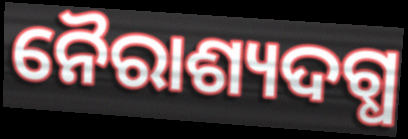
ନୈରାଶ୍ୟଦଗ୍ଧ